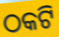
ଠକଟି